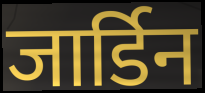
जार्डिन